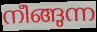
നീങ്ങുന്ന